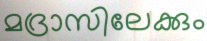
മദ്രാസിലേക്കും